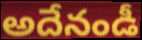
అదేనండీ